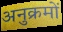
अनुक्रमों